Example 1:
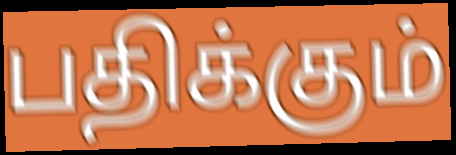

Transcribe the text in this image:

பதிக்கும்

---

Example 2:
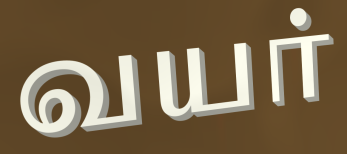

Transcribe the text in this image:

வயர்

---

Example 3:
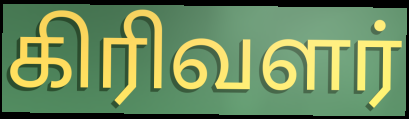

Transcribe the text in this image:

கிரிவளர்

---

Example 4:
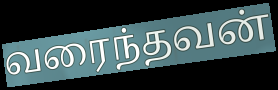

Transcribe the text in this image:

வரைந்தவன்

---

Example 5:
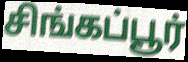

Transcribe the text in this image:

சிங்கப்பூர்